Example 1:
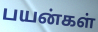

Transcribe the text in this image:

பயன்கள்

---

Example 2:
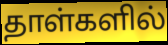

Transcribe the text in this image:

தாள்களில்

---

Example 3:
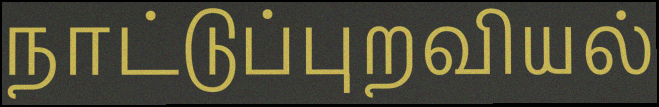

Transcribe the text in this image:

நாட்டுப்புறவியல்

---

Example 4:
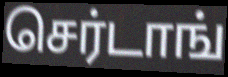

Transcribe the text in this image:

செர்டாங்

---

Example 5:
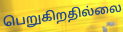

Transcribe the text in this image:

பெறுகிறதில்லை